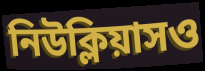
নিউক্লিয়াসও